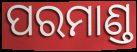
ପରମାଣ୍ଡ